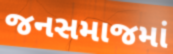
જનસમાજમાં